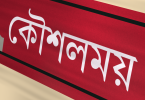
কৌশলময়